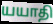
யயாதி